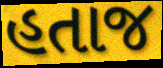
હતાજ